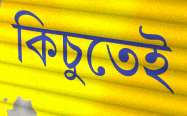
কিচুতেই